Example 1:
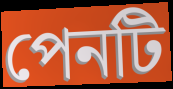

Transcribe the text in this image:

পেনটি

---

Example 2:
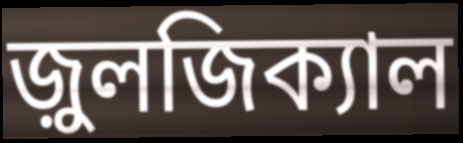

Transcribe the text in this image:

জ়ুলজিক্যাল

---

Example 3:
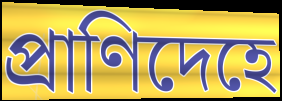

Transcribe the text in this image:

প্রাণিদেহে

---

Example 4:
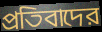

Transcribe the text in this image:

প্রতিবাদের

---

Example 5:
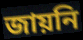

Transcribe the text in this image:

জায়নি